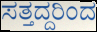
ಸತ್ತದ್ದರಿಂದ